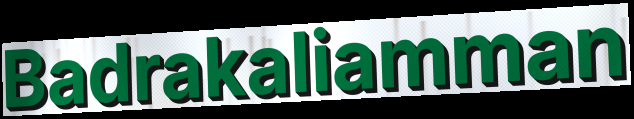
Badrakaliamman